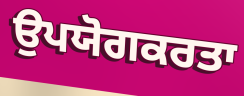
ਉਪਯੋਗਕਰਤਾ